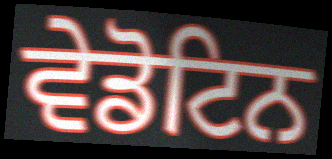
ਵੇਡੋਟਿਨ